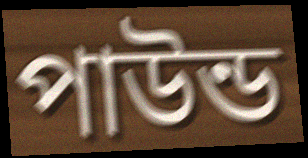
পাউন্ড